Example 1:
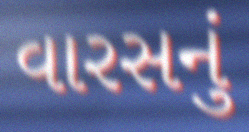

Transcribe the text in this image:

વારસનું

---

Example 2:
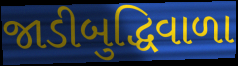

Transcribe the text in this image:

જાડીબુદ્ધિવાળા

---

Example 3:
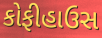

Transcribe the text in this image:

કોફીહાઉસ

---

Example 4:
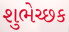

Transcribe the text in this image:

શુભેચ્છક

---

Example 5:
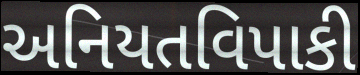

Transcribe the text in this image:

અનિયતવિપાકી